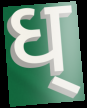
ध्